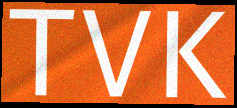
TVK